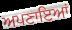
ਅਪਣਾਇਆਂ